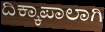
ದಿಕ್ಕಾಪಾಲಾಗಿ